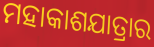
ମହାକାଶଯାତ୍ରାର